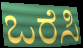
ಒರೆಸಿ